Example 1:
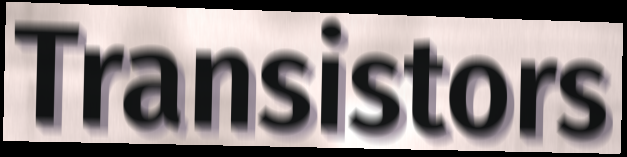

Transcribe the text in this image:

Transistors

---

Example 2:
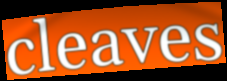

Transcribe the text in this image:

cleaves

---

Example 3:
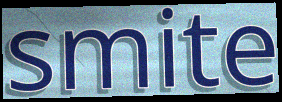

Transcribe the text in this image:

smite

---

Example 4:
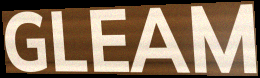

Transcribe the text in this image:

GLEAM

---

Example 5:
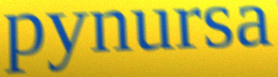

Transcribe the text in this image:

pynursa